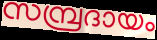
സമ്പ്രദായം